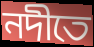
নদীতে